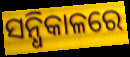
ସନ୍ଧିକାଳରେ